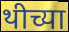
थीच्या